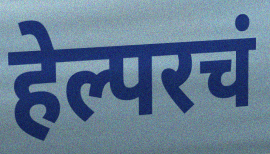
हेल्परचं